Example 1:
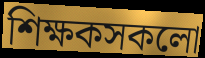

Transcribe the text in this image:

শিক্ষকসকলো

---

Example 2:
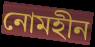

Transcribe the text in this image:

নোমহীন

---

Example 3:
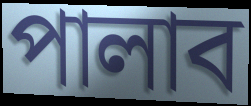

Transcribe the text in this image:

পালাব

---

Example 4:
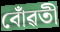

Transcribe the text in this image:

বোঁৱতী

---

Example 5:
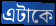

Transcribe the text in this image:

এটাকে